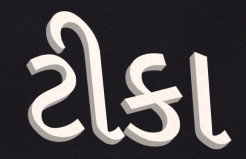
ટીકા